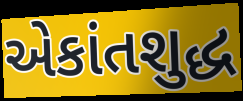
એકાંતશુદ્ધ